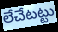
లేచేటట్టు